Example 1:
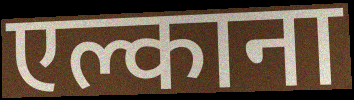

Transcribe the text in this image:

एल्काना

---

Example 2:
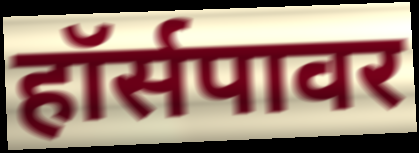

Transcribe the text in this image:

हॉर्सपावर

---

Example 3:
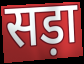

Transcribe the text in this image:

सड़ा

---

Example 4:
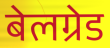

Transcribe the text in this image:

बेलग्रेड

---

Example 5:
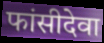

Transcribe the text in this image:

फांसीदेवा